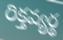
రిక్తవ్యర్థ